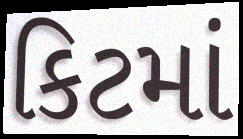
કિટમાં